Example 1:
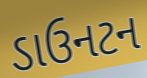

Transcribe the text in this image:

ડાઉનટન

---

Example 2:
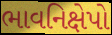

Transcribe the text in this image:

ભાવનિક્ષેપો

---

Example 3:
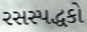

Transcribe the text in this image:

રસસ્પદ્ધકો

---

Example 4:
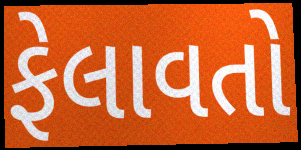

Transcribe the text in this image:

ફેલાવતો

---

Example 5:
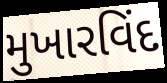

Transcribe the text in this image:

મુખારવિંદ